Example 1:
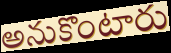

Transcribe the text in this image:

అనుకొంటారు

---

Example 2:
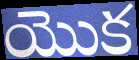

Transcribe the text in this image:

యొక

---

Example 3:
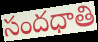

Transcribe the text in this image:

సందధాతి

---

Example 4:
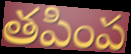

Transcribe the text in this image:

తపింప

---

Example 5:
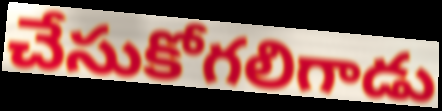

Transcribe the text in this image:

చేసుకోగలిగాడు